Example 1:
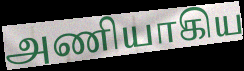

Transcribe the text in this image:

அணியாகிய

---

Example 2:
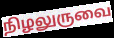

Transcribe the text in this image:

நிழலுருவை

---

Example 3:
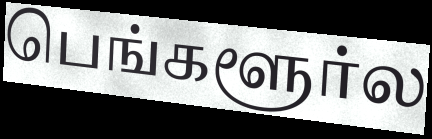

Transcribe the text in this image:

பெங்களூர்ல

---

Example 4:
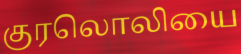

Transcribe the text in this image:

குரலொலியை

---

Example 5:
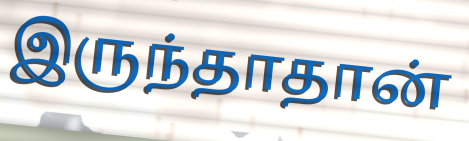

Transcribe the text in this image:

இருந்தாதான்